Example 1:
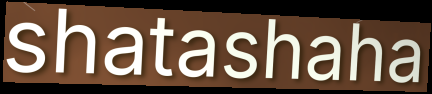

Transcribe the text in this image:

shatashaha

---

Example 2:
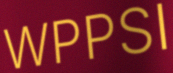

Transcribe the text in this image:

WPPSI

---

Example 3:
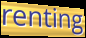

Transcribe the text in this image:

renting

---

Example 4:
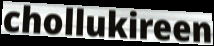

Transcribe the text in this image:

chollukireen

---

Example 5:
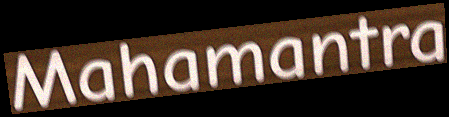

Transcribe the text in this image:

Mahamantra